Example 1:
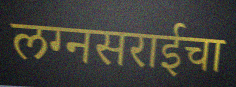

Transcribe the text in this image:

लग्नसराईचा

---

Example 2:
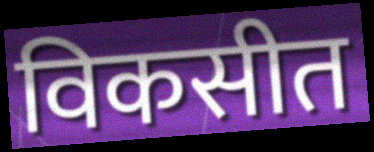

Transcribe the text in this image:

विकसीत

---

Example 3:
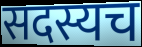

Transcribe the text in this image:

सदस्यच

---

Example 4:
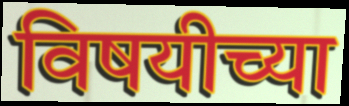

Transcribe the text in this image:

विषयीच्या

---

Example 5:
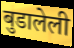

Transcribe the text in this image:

बुडालेली